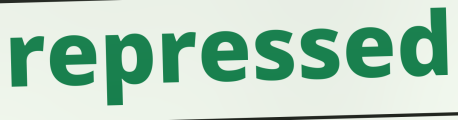
repressed